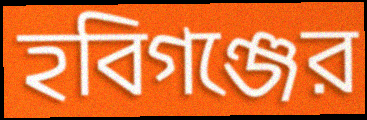
হবিগঞ্জের